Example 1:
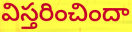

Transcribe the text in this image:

విస్తరించిందా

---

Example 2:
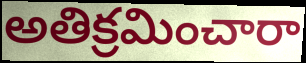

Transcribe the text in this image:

అతిక్రమించారా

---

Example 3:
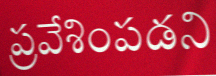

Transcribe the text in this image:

ప్రవేశింపడని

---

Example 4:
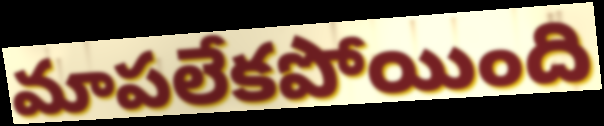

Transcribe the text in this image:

మాపలేకపోయింది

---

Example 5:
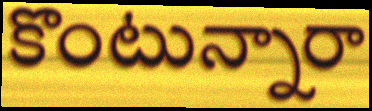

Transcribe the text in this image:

కొంటున్నారా